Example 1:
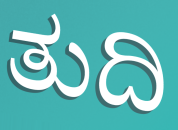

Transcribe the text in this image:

ತುದಿ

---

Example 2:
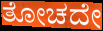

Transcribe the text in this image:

ತೋಚದೇ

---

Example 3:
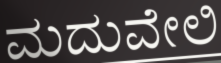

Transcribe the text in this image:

ಮದುವೇಲಿ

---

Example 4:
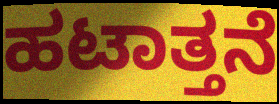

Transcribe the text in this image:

ಹಟಾತ್ತನೆ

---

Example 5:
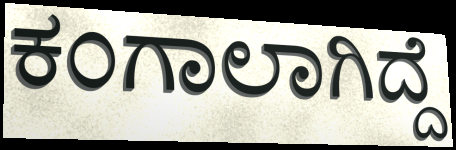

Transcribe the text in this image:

ಕಂಗಾಲಾಗಿದ್ದೆ